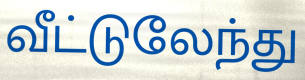
வீட்டுலேந்து